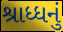
શ્રાધ્ધનું